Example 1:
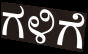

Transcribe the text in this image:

ಗಳಿಗೆ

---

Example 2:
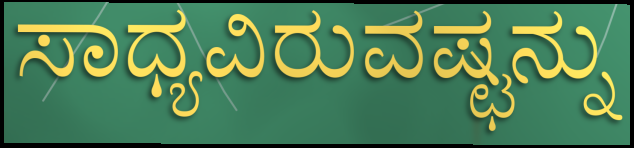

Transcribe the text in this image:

ಸಾಧ್ಯವಿರುವಷ್ಟನ್ನು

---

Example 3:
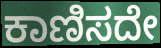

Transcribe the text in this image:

ಕಾಣಿಸದೇ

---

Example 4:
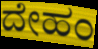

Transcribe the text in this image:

ದೇಹಂ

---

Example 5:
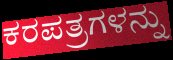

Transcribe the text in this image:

ಕರಪತ್ರಗಳನ್ನು